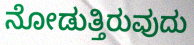
ನೋಡುತ್ತಿರುವುದು